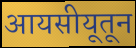
आयसीयूतून